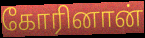
கோரினான்